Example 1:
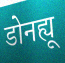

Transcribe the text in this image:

डोनह्यू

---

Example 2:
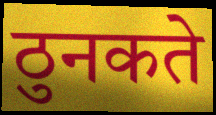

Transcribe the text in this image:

ठुनकते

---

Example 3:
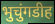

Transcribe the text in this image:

भुचुंगडीह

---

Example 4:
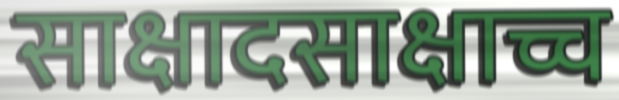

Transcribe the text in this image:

साक्षादसाक्षाच्च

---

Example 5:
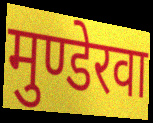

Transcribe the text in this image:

मुण्डेरवा